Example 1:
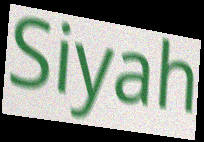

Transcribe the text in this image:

Siyah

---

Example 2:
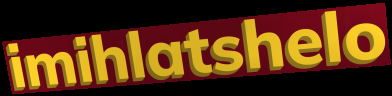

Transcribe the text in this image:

imihlatshelo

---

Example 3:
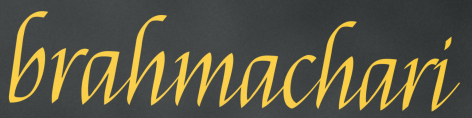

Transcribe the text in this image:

brahmachari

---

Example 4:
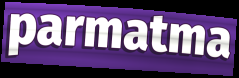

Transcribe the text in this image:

parmatma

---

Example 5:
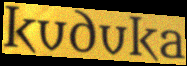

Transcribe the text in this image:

kuduka